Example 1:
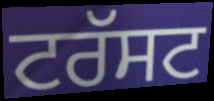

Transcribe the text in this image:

ਟਰੱਸਟ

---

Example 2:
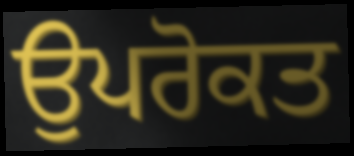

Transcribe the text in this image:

ਉਪਰੋਕਤ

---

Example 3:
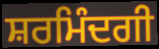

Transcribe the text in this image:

ਸ਼ਰਮਿੰਦਗੀ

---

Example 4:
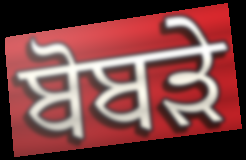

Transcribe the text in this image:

ਬੋਬੜੇ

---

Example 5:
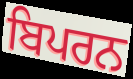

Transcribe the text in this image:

ਬਿਪਰਨ